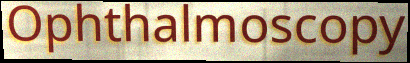
Ophthalmoscopy